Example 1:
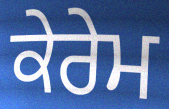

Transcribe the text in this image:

ਕੇਰੇਮ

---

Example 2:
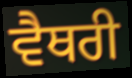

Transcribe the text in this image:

ਵੈਥਰੀ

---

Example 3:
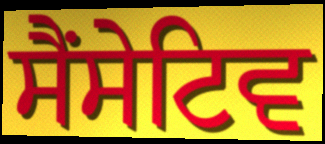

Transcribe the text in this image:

ਸੈਂਸੇਟਿਵ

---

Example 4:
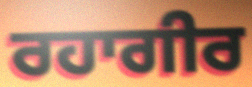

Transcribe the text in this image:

ਰਹਾਗੀਰ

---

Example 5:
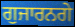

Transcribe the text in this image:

ਗੁਜਾਰਨਗੇ